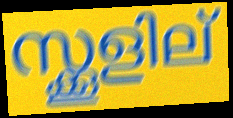
സ്ക്കൂളില്